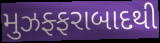
મુઝફ્ફરાબાદથી